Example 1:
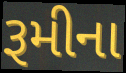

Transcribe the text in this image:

રૂમીના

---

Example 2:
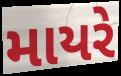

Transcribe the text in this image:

માયરે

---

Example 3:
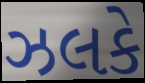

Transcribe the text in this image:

ઝલકે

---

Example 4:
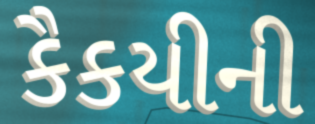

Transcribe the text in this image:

કૈકયીની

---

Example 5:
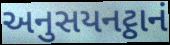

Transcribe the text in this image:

અનુસયનટ્ઠાનં